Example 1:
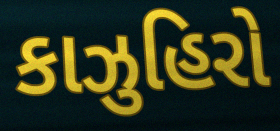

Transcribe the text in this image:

કાઝુહિરો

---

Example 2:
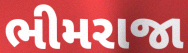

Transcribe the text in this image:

ભીમરાજા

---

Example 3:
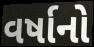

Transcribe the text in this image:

વર્ષાનો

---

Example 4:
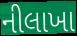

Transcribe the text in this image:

નીલાખા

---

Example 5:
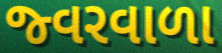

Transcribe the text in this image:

જ્વરવાળા